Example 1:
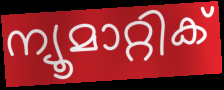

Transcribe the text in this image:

ന്യൂമാറ്റിക്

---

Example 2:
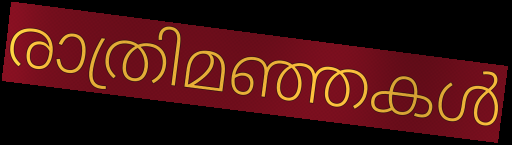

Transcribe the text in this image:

രാത്രിമഞ്ഞകൾ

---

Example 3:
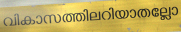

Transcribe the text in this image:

വികാസത്തിലറിയാതല്ലോ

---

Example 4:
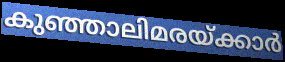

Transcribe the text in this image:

കുഞ്ഞാലിമരയ്ക്കാർ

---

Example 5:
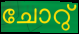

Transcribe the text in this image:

ചോറു്